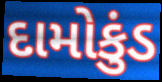
દામોકુંડ